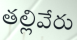
తల్లివేరు